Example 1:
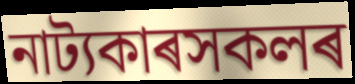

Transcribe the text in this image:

নাট্যকাৰসকলৰ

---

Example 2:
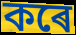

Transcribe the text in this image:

কৰে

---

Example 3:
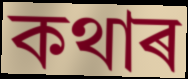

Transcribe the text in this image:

কথাৰ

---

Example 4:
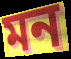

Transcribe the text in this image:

মন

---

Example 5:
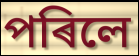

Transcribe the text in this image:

পৰিলে